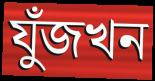
যুঁজখন